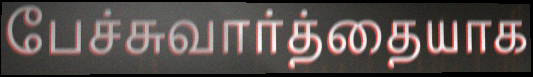
பேச்சுவார்த்தையாக